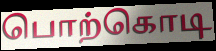
பொற்கொடி